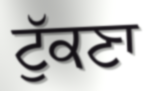
ਟੁੱਕਣਾ